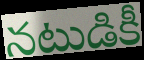
నటుడికీ